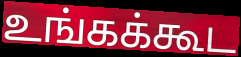
உங்கக்கூட